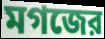
মগজের